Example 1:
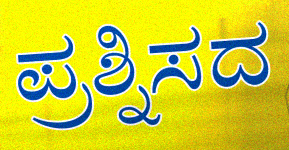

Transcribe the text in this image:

ಪ್ರಶ್ನಿಸದ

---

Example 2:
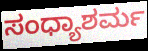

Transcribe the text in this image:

ಸಂಧ್ಯಾಶರ್ಮ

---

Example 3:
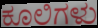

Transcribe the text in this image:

ಕೂಲಿಗಳು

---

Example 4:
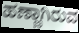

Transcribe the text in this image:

ಹಣ್ಣಾಗಿರುವ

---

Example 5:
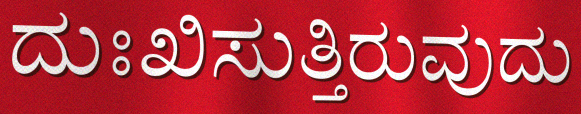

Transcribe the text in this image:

ದುಃಖಿಸುತ್ತಿರುವುದು